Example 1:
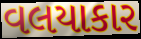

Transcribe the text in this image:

વલયાકાર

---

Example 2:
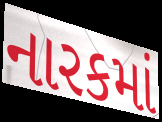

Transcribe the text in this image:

નારકમાં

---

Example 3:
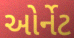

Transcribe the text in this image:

ઓર્નેટ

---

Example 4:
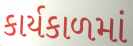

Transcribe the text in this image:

કાર્યકાળમાં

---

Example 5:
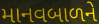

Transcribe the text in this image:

માનવબાળને